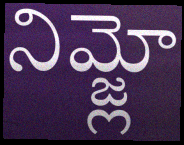
నిమ్జ్లో